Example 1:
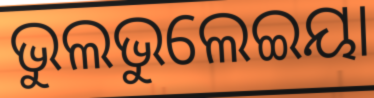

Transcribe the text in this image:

ଭୁଲଭୁଲେଇୟା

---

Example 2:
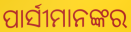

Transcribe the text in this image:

ପାର୍ସୀମାନଙ୍କର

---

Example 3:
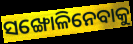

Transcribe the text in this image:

ସଙ୍ଖୋଳିନେବାକୁ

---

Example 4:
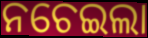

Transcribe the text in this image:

ନଚେଇଲା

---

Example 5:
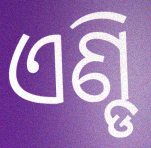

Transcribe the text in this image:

ଏଣ୍ଡି